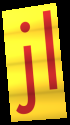
jl